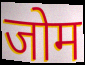
जोम